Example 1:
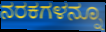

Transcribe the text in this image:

ನರಕಗಳನ್ನೂ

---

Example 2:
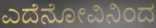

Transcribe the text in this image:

ಎದೆನೋವಿನಿಂದ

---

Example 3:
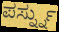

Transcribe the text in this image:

ಪರ್ಸ್ನ್ನು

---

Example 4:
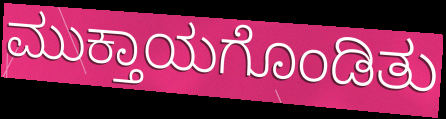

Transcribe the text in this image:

ಮುಕ್ತಾಯಗೊಂಡಿತು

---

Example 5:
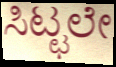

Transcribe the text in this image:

ಸಿಟ್ಟಲೇ